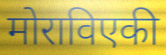
मोराविएकी